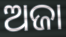
ଅଜା